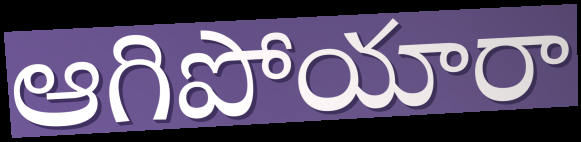
ఆగిపోయారా